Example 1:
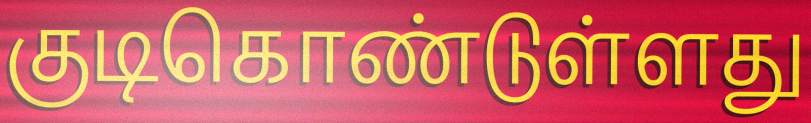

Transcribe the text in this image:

குடிகொண்டுள்ளது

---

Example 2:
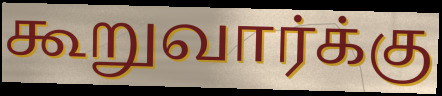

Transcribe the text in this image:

கூறுவார்க்கு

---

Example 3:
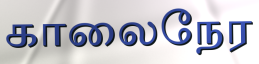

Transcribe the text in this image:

காலைநேர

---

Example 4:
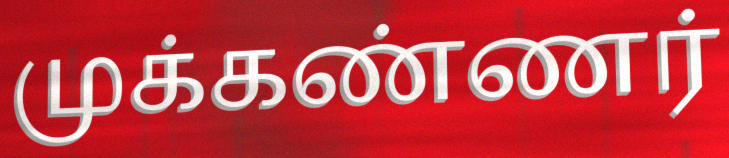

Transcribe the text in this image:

முக்கண்ணர்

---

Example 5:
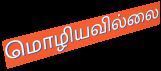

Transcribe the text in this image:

மொழியவில்லை